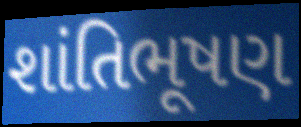
શાંતિભૂષણ